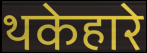
थकेहारे